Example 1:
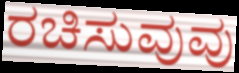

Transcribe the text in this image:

ರಚಿಸುವುವು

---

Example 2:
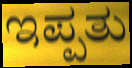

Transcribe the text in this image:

ಇಪ್ಪತು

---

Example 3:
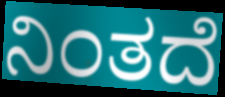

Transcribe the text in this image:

ನಿಂತದೆ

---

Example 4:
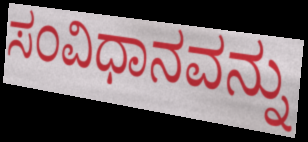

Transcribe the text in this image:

ಸಂವಿಧಾನವನ್ನು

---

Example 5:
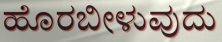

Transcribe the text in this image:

ಹೊರಬೀಳುವುದು